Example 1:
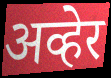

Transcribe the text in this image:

अव्हेर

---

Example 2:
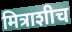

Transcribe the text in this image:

मित्राशीच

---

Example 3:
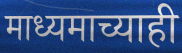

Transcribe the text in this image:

माध्यमाच्याही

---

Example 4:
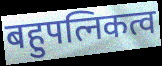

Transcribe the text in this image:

बहुपत्निकत्व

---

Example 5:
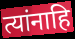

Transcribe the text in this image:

त्यांनाहि